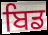
ਬਿਡ